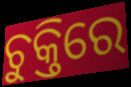
ଚୁକ୍ତିରେ